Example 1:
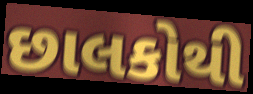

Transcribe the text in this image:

છાલકોથી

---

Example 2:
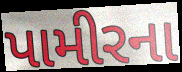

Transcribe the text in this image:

પામીરના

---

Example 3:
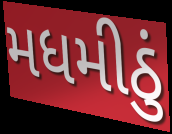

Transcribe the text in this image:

મધમીઠું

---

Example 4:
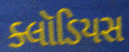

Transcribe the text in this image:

ક્લૉડિયસ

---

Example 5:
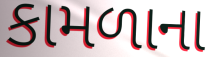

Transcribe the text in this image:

કામળાના